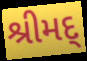
શ્રીમદ્